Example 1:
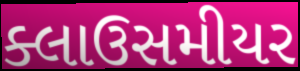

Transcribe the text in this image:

ક્લાઉસમીયર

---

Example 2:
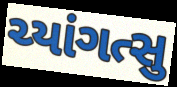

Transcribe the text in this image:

ચ્યાંગત્સુ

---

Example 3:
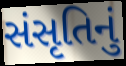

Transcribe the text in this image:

સંસૃતિનું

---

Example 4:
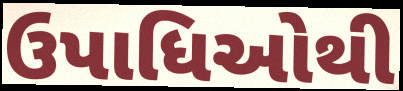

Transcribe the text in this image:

ઉપાધિઓથી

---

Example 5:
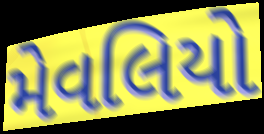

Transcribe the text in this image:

મેવલિયો